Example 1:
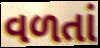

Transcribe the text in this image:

વળતાં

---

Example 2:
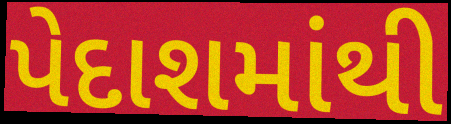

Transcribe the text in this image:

પેદાશમાંથી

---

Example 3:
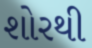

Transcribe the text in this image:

શોરથી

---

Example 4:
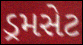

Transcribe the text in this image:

ડ્રમસેટ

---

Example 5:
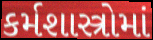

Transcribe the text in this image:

કર્મશાસ્ત્રોમાં